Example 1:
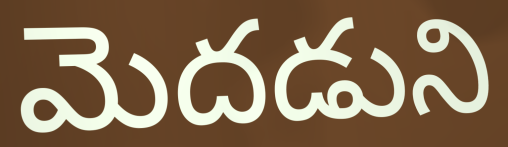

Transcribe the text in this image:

మెదడుని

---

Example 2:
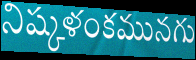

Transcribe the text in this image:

నిష్కళంకమునగు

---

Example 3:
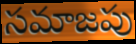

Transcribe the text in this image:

సమాజపు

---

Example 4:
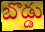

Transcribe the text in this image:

బొడ్డు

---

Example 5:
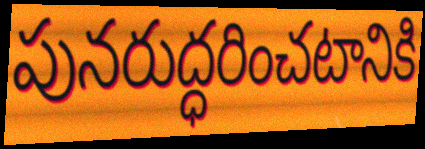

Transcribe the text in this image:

పునరుద్ధరించటానికి